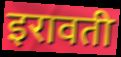
इरावती